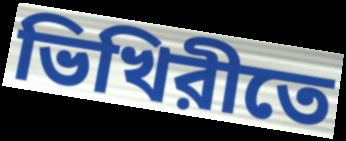
ভিখিরীতে